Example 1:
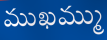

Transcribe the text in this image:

ముఖమ్ము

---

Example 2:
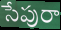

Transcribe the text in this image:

సేపురా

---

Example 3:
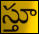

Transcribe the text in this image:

స్తూ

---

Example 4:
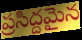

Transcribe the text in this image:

ప్రసిద్దమైన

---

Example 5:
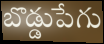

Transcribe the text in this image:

బొడ్డుపేగు